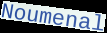
Noumenal